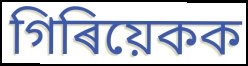
গিৰিয়েকক